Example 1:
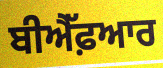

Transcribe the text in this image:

ਬੀਐੱਫ਼ਆਰ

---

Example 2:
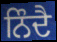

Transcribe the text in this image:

ਨਿੰਦੈ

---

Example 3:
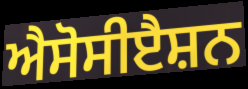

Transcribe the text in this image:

ਐਸੋਸੀੲੈਸ਼ਨ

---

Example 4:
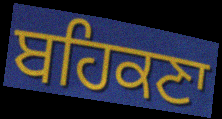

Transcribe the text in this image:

ਬਹਿਕਣਾ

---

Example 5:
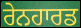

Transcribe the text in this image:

ਰੇਨਹਾਰਡ